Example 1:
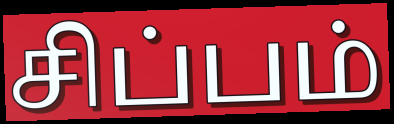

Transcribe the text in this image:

சிப்பம்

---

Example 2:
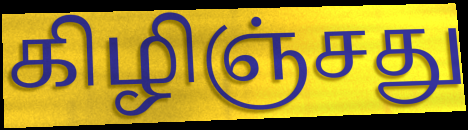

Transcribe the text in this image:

கிழிஞ்சது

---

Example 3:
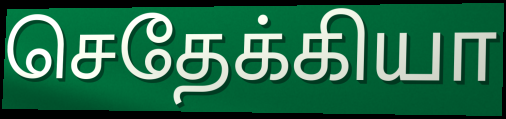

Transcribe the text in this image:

செதேக்கியா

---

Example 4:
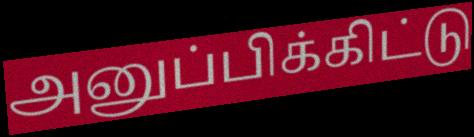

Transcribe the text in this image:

அனுப்பிக்கிட்டு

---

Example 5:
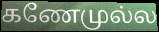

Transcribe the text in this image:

கணேமுல்ல